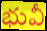
భువీ